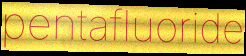
pentafluoride